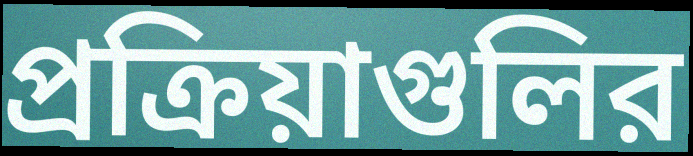
প্রক্রিয়াগুলির